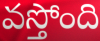
వస్తోంది